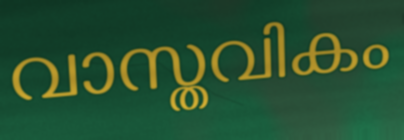
വാസ്തവികം